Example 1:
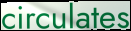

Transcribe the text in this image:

circulates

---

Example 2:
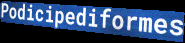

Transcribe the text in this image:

Podicipediformes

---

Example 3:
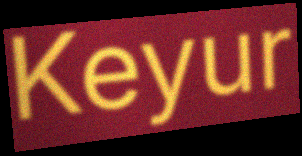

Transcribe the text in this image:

Keyur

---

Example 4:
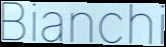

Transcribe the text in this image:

Bianchi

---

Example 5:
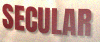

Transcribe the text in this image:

SECULAR